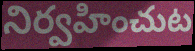
నిర్వహించుట